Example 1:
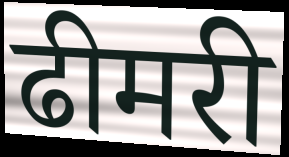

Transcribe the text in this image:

ढीमरी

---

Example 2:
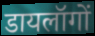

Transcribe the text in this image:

डायलॉगों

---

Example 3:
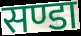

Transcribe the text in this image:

सण्डा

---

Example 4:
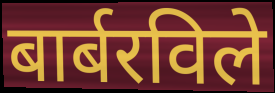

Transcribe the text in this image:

बार्बरविले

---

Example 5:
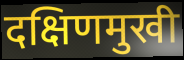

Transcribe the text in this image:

दक्षिणमुखी